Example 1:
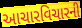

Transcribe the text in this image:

આચારવિચારની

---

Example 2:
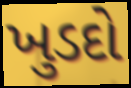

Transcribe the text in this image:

ખુડદો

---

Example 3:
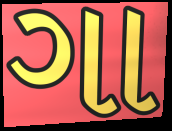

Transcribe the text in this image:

ગા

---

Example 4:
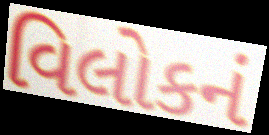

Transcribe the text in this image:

વિલોકનં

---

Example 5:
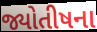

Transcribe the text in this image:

જ્યોતીષના